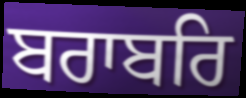
ਬਰਾਬਰਿ